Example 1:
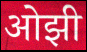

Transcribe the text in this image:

ओझी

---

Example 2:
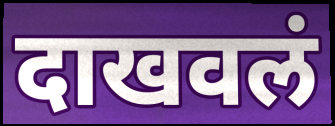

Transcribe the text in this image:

दाखवलं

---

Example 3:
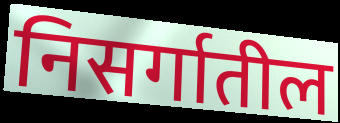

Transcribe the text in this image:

निसर्गातील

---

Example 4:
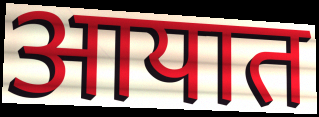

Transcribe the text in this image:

आयात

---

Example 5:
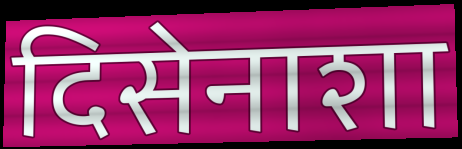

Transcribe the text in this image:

दिसेनाशा